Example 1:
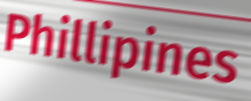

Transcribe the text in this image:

Phillipines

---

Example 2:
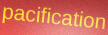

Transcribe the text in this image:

pacification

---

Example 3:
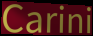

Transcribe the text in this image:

Carini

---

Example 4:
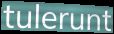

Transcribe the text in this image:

tulerunt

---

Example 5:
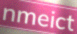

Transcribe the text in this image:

nmeict